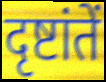
दृष्टांतें